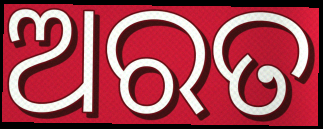
ଅରତ